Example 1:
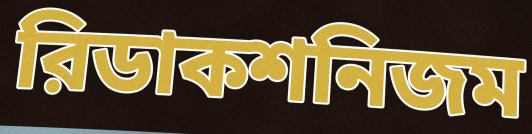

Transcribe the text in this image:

রিডাকশনিজম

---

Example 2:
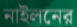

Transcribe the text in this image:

নাইলনের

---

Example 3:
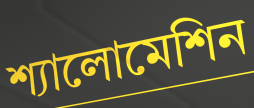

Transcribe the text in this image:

শ্যালোমেশিন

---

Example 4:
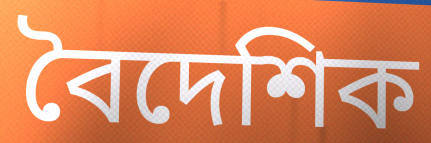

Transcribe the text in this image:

বৈদেশিক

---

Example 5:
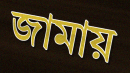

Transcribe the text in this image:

জামায়